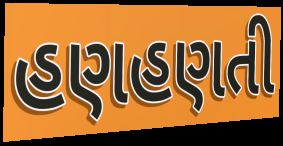
હણહણતી